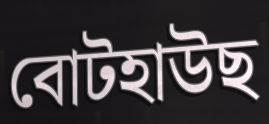
বোটহাউছ